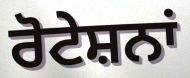
ਰੋਟੇਸ਼ਨਾਂ